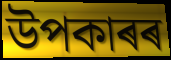
উপকাৰৰ